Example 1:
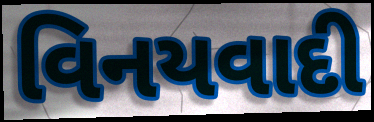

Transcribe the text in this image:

વિનયવાદી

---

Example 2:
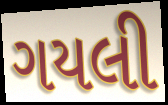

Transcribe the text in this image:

ગયલી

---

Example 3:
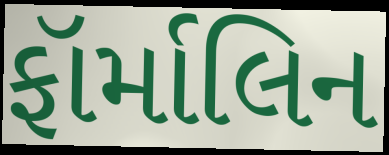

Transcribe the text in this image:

ફૉર્માલિન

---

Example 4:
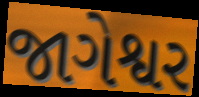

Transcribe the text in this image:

જાગેશ્વર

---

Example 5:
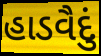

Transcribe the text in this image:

હાડવૈદું